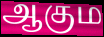
ஆகும